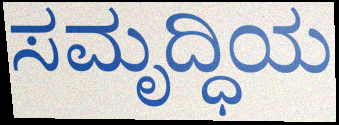
ಸಮೃದ್ಧಿಯ